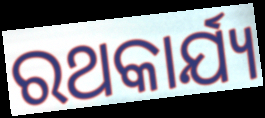
ରଥକାର୍ଯ୍ୟ